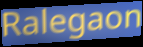
Ralegaon